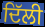
ਦਿੱਲੀ